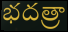
భదత్రా